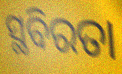
ସ୍ଥବିରତା